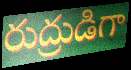
రుద్రుడిగా